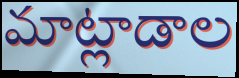
మాట్లాడాల